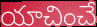
యాచించే